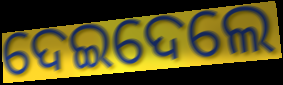
ଦେଇଦେଲେ